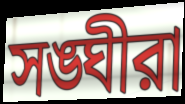
সঙ্ঘীরা